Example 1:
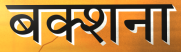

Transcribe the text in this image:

बक्शना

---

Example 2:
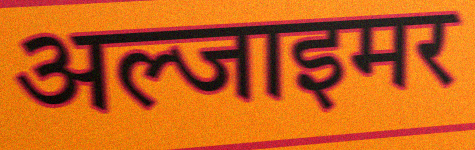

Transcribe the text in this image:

अल्जाइमर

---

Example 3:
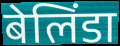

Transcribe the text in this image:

बेलिंडा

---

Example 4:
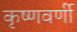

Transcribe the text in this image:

कृष्णवर्णी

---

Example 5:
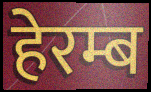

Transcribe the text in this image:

हेरम्ब